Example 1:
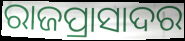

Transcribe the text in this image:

ରାଜପ୍ରାସାଦର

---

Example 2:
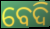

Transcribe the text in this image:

ବେଦି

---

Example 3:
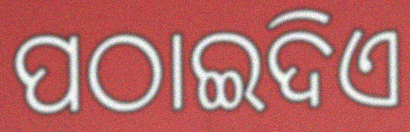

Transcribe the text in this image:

ପଠାଇଦିଏ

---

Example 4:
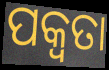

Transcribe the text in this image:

ପକ୍ୱତା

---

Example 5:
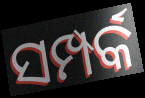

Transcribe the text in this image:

ସମ୍ପର୍କ